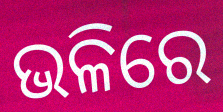
ଭଳିରେ